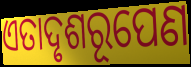
ଏତାଦୃଶରୂପେଣ